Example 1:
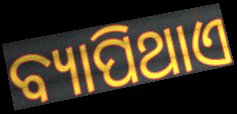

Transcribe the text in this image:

ବ୍ୟାପିଥାଏ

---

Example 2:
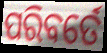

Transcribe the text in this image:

ପରିବର୍ତେ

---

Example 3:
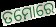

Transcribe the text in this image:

ତମୋରେ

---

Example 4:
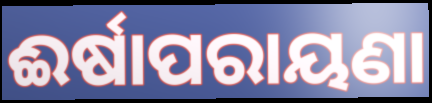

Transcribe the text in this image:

ଈର୍ଷାପରାୟଣା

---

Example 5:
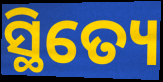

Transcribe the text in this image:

ସ୍ଥିତ୍ୟେ